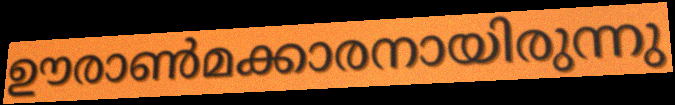
ഊരാൺമക്കാരനായിരുന്നു